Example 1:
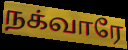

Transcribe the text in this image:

நக்வாரே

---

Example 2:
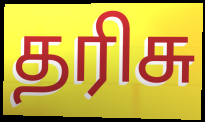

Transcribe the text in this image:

தரிசு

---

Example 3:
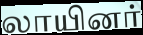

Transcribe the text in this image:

லாயினர்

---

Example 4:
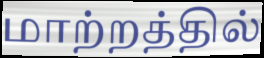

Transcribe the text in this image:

மாற்றத்தில்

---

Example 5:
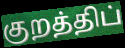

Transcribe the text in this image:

குறத்திப்